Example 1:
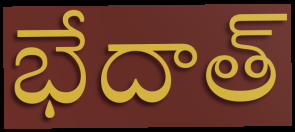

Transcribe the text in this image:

భేదాత్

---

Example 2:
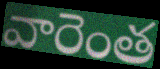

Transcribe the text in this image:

వారెంత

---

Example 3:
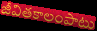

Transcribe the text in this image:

జీవితకాలంపాటు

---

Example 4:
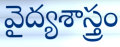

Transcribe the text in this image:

వైద్యశాస్త్రం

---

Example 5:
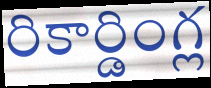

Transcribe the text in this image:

రికార్డింగ్ల